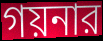
গয়নার